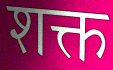
शक्त